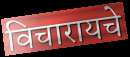
विचारायचे